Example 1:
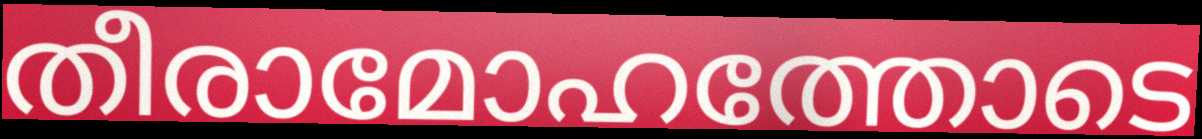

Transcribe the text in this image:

തീരാമോഹത്തോടെ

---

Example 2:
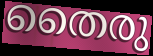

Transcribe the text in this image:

തൈരു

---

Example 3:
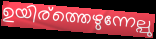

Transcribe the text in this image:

ഉയിര്ത്തെഴുന്നേല്പു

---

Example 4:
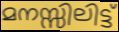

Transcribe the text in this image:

മനസ്സിലിട്ട്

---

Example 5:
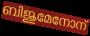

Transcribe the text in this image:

ബിജുമേനോന്